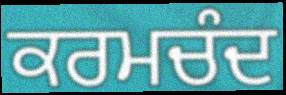
ਕਰਮਚੰਦ